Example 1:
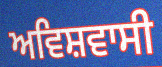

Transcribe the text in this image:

ਅਵਿਸ਼ਵਾਸੀ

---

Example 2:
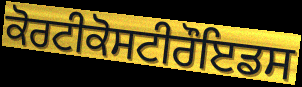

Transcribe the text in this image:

ਕੋਰਟੀਕੋਸਟੀਰੌਇਡਸ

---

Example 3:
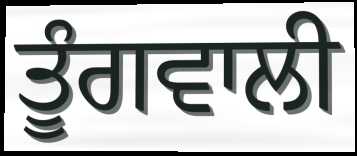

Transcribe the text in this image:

ਤੂੰਗਵਾਲੀ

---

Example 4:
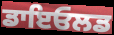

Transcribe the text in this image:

ਡਾਇਓਲਡ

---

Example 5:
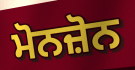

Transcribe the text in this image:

ਮੋਨਜ਼ੋਨ